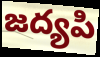
జద్యపి